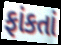
ફાંકતાં